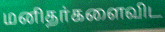
மனிதர்களைவிட